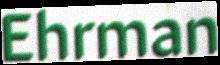
Ehrman